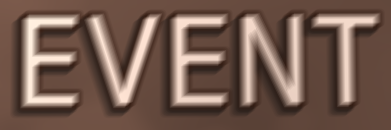
EVENT